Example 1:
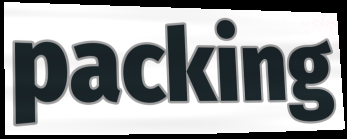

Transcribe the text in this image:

packing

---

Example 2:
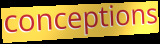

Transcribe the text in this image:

conceptions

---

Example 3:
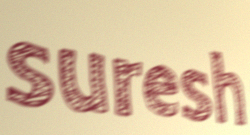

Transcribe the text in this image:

suresh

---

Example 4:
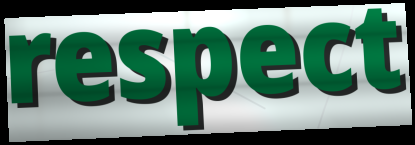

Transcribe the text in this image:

respect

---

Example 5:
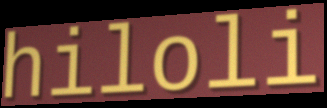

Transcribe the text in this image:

hiloli